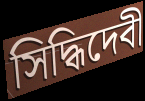
সিদ্ধিদেবী